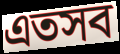
এতসব